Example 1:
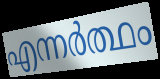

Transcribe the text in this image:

എന്നർത്ഥം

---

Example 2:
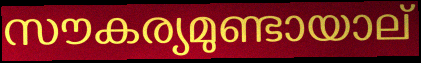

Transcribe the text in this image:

സൗകര്യമുണ്ടായാല്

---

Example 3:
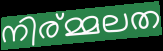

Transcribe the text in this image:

നിര്മ്മലത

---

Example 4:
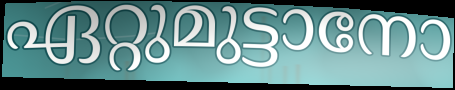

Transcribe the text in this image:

ഏറ്റുമുട്ടാനോ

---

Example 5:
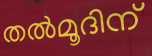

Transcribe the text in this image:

തൽമൂദിന്